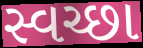
સ્વચ્છા